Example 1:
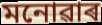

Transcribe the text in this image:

মনোৱাৰ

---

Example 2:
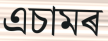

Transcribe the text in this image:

এচামৰ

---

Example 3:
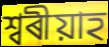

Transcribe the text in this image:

শ্বৰীয়াহ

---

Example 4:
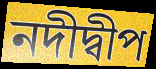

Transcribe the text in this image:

নদীদ্বীপ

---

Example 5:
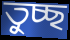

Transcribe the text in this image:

তুচ্ছ